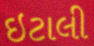
ઇટાલી